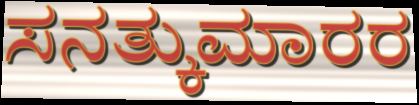
ಸನತ್ಕುಮಾರರ